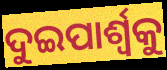
ଦୁଇପାର୍ଶ୍ବକୁ